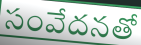
సంవేదనతో